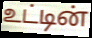
உட்டின்